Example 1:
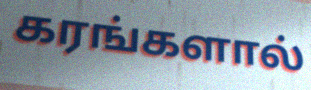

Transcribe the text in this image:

கரங்களால்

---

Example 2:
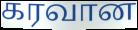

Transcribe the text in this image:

கரவான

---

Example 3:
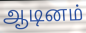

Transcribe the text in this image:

ஆடினம்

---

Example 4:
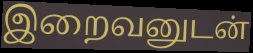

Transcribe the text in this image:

இறைவனுடன்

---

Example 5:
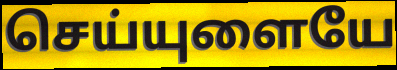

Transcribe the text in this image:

செய்யுளையே